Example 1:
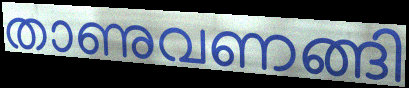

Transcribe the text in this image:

താണുവണങ്ങി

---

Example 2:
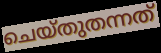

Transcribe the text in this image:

ചെയ്തുതന്നത്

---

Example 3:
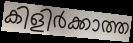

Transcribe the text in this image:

കിളിർക്കാത്ത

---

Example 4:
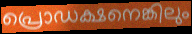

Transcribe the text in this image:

പ്രൊഡക്ഷനെങ്കിലും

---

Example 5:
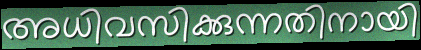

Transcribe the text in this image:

അധിവസിക്കുന്നതിനായി